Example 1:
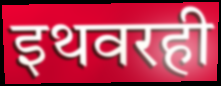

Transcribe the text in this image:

इथवरही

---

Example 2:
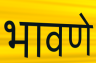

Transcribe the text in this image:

भावणे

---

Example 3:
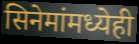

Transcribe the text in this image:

सिनेमांमध्येही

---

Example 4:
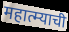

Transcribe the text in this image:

महात्म्याची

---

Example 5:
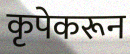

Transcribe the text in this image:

कृपेकरून